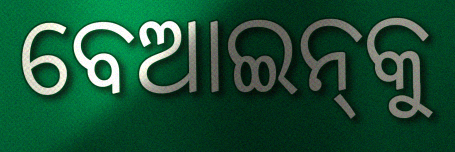
ବେଆଇନ୍‌କୁ